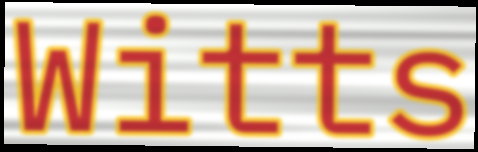
Witts